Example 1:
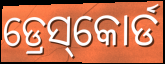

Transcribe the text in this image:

ଡ୍ରେସ୍‌କୋର୍ଡ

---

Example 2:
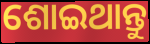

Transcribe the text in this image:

ଶୋଇଥାନ୍ତୁ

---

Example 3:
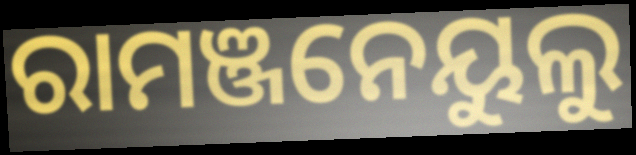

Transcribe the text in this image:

ରାମଞ୍ଜନେୟୁଲୁ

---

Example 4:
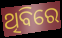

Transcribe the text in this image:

ଥିବିରେ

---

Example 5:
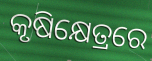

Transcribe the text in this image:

କୃଷିକ୍ଷେତ୍ରରେ